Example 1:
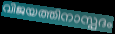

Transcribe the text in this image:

വിജയത്തിനാസ്പദം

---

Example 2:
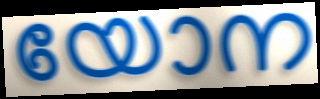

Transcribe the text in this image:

യോന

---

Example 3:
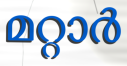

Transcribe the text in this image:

മറ്റാർ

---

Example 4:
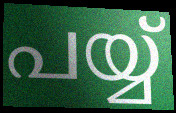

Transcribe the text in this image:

പയ്യ്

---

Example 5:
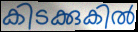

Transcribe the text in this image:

കിടക്കുകിൽ